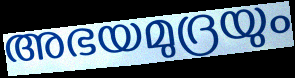
അഭയമുദ്രയും